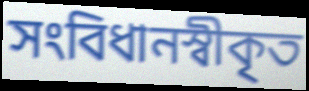
সংবিধানস্বীকৃত